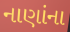
નાણાંના